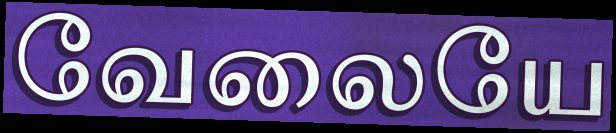
வேலையே